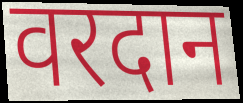
वरदान